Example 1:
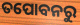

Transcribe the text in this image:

ତପୋବନରୁ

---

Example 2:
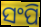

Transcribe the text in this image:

ସଂପି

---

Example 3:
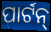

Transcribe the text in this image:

ପାର୍ଟନ୍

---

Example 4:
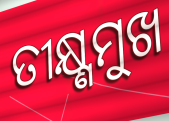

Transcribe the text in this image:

ତୀକ୍ଷ୍ଣମୁଖ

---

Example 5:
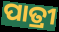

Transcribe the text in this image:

ପାତ୍ରୀ